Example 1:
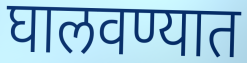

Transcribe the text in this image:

घालवण्यात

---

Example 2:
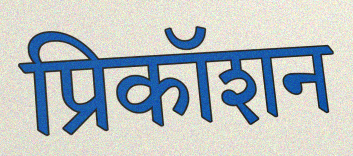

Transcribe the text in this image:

प्रिकॉशन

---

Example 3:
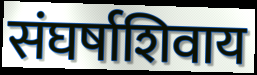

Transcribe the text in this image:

संघर्षाशिवाय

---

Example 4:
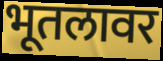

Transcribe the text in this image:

भूतलावर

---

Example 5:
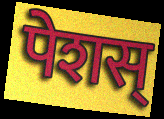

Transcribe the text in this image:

पेशस्